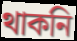
থাকনি